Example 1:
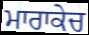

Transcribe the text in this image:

ਮਾਰਾਕੇਚ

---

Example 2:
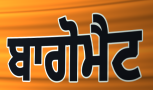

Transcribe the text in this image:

ਬਾਗੋਮੈਟ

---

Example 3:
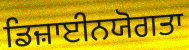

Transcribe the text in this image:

ਡਿਜ਼ਾਈਨਯੋਗਤਾ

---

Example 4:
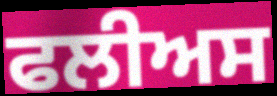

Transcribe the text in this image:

ਫਲੀਅਸ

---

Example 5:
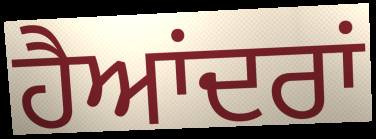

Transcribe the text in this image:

ਹੈਆਂਦਰਾਂ